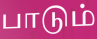
பாடும்